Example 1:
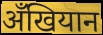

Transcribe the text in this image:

अँखियान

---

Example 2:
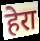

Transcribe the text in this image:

हेरा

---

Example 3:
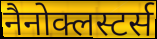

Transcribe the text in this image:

नैनोक्लस्टर्स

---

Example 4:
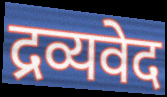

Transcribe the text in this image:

द्रव्यवेद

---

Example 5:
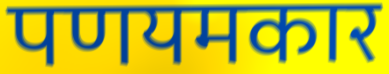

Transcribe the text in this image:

पणयमकार